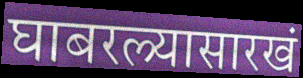
घाबरल्यासारखं